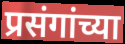
प्रसंगांच्या